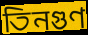
তিনগুণ